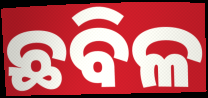
ଛବିଳ